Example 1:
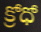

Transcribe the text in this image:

క్రోధో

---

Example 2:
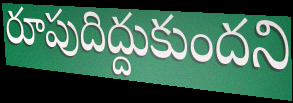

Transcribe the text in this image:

రూపుదిద్దుకుందని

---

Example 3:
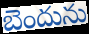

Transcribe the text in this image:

బెందును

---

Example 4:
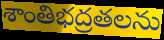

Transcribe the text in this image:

శాంతిభద్రతలను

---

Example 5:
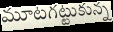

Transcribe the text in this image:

మూటగట్టుకున్న